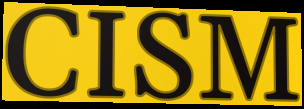
CISM